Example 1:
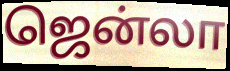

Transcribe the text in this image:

ஜென்லா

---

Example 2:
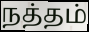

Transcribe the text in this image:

நத்தம்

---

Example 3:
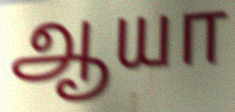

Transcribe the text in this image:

ஆயா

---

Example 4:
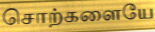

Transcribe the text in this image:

சொற்களையே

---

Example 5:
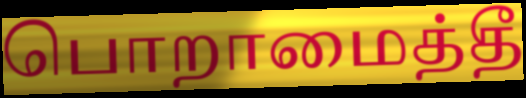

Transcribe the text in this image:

பொறாமைத்தீ